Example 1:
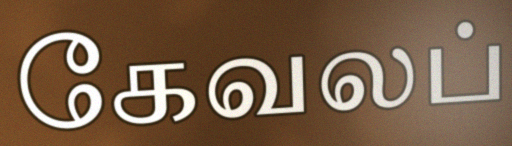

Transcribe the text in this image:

கேவலப்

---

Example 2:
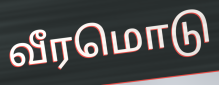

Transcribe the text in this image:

வீரமொடு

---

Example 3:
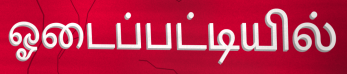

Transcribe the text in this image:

ஓடைப்பட்டியில்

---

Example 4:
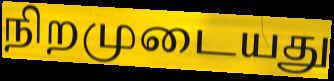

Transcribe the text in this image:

நிறமுடையது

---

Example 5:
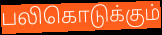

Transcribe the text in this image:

பலிகொடுக்கும்